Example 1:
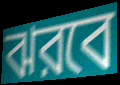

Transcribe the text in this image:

ঝরবে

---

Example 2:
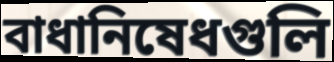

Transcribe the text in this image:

বাধানিষেধগুলি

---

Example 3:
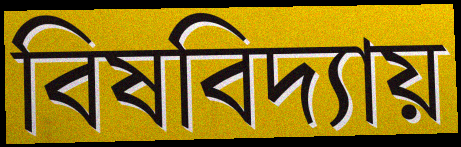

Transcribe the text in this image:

বিষবিদ্যায়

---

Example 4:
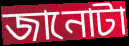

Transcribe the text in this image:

জানোটা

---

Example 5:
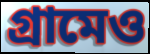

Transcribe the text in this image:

গ্রামেও